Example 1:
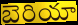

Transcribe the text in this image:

బెరియా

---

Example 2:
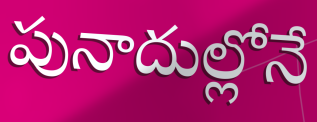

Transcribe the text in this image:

పునాదుల్లోనే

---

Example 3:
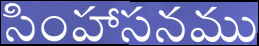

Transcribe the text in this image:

సింహాసనము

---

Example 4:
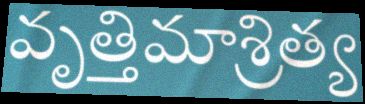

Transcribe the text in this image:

వృత్తిమాశ్రిత్య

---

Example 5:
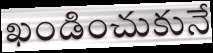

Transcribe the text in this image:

ఖండించుకునే